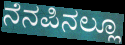
ನೆನಪಿನಲ್ಲೂ